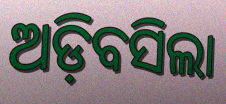
ଅଡ଼ିବସିଲା